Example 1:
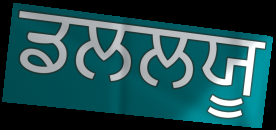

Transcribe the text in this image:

ਡਲਲਯੂ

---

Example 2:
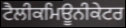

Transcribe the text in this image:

ਟੈਲੀਕਮਿਊਨੀਕੇਟਰ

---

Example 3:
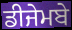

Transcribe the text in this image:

ਡੀਜੇਮਬੇ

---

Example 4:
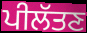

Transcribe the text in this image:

ਪੀਲੱਤਣ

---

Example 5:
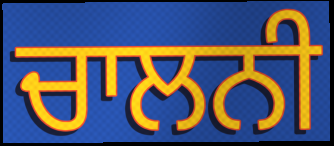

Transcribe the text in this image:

ਚਾਲਨੀ